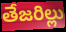
తేజరిల్లు